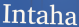
Intaha